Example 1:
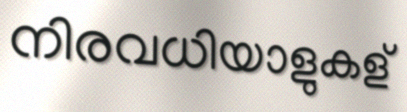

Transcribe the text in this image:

നിരവധിയാളുകള്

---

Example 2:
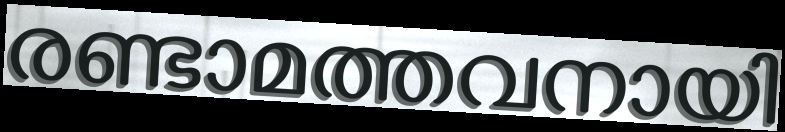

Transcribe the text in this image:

രണ്ടാമത്തവനായി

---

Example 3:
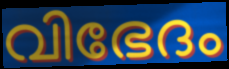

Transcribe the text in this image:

വിഭേദം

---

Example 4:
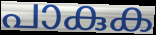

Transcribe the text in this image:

പാകുക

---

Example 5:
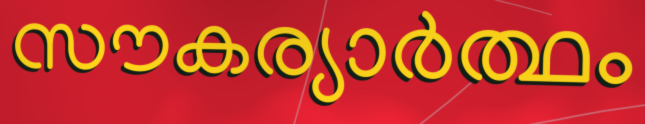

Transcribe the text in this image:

സൗകര്യാർത്ഥം